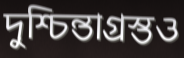
দুশ্চিন্তাগ্রস্তও